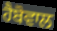
ਹੈਬੋਵਾਲ